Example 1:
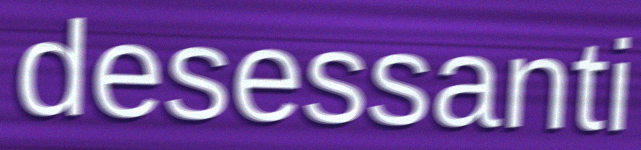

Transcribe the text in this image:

desessanti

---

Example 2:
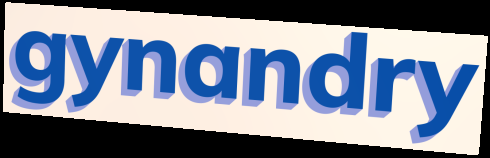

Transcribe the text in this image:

gynandry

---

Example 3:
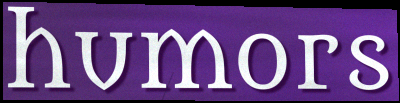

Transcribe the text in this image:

humors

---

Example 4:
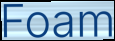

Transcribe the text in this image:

Foam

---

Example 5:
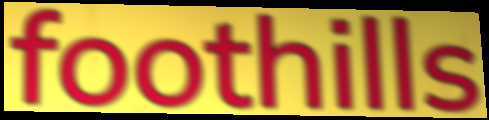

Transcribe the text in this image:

foothills